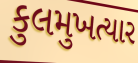
કુલમુખત્યાર